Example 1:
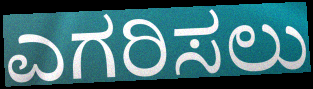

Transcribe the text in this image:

ಎಗರಿಸಲು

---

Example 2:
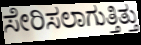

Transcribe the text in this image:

ಸೇರಿಸಲಾಗುತ್ತಿತ್ತು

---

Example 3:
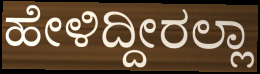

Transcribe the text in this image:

ಹೇಳಿದ್ದೀರಲ್ಲಾ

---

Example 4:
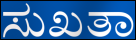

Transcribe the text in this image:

ಸುಖತಾ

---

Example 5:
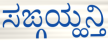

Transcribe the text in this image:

ಸಙ್ಗಯ್ಹನ್ತಿ